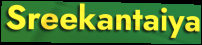
Sreekantaiya